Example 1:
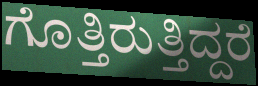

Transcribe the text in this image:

ಗೊತ್ತಿರುತ್ತಿದ್ದರೆ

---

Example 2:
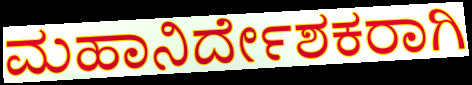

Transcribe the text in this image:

ಮಹಾನಿರ್ದೇಶಕರಾಗಿ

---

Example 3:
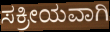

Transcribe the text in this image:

ಸಕ್ರೀಯವಾಗಿ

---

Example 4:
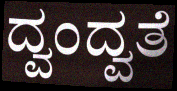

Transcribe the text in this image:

ದ್ವಂದ್ವತೆ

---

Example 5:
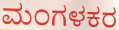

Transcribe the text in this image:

ಮಂಗಳಕರ